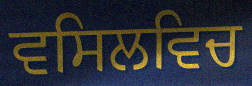
ਵਸਿਲਵਿਚ